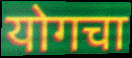
योगचा